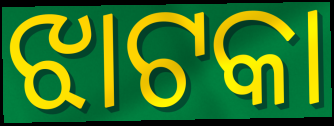
ଝାଟକା